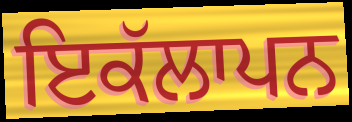
ਇਕੱਲਾਪਨ